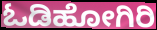
ಓಡಿಹೋಗಿರಿ